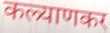
कल्याणकर